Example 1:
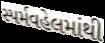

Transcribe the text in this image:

સ્પર્મવહેલમાંથી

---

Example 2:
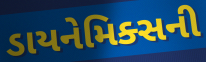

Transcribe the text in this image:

ડાયનેમિક્સની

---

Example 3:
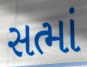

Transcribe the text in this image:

સત્માં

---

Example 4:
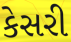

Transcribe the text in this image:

કેસરી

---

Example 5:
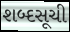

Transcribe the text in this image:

શબ્દસૂચી